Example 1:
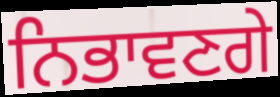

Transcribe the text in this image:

ਨਿਭਾਵਣਗੇ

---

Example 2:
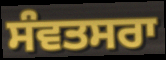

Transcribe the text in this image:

ਸੰਵਤਸਰਾ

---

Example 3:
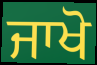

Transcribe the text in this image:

ਜਾਖੋ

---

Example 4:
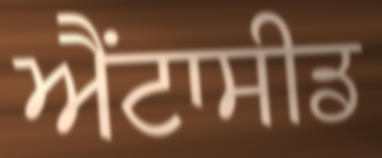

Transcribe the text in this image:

ਐਂਟਾਸੀਡ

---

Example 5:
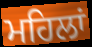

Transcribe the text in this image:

ਮਹਿਲਾਂ